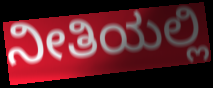
ನೀತಿಯಲ್ಲಿ